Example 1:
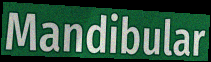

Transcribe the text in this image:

Mandibular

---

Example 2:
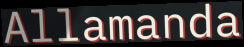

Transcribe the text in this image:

Allamanda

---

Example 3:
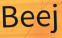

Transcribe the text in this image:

Beej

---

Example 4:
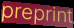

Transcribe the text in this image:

preprint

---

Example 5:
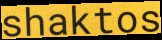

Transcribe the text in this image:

shaktos